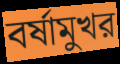
বর্ষামুখর